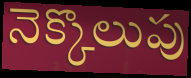
నెక్కొలుపు